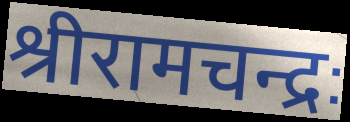
श्रीरामचन्द्रः